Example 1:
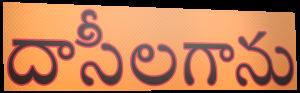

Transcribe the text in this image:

దాసీలగాను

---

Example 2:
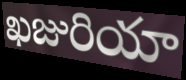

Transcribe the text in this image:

ఖజురియా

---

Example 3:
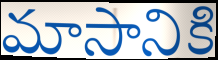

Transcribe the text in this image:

మాసానికి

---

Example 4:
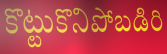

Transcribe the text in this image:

కొట్టుకొనిపోబడిరి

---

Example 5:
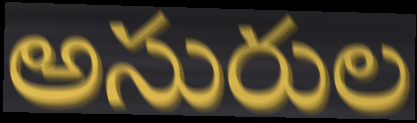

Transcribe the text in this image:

అసురుల